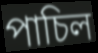
পাচিল